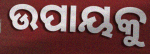
ଉପାୟକୁ